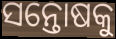
ସନ୍ତୋଷକୁ